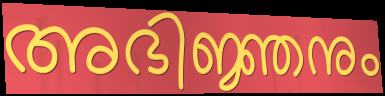
അഭിജ്ഞനും